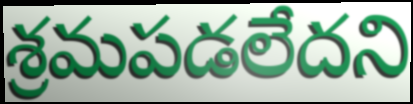
శ్రమపడలేదని